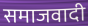
समाजवादी